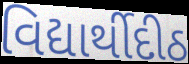
વિદ્યાર્થીદીઠ